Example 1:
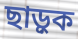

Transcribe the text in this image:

ছাড়ুক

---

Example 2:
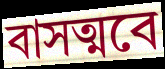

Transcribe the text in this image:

বাসত্মবে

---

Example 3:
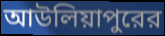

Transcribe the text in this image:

আউলিয়াপুরের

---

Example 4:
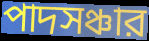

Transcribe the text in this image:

পাদসঞ্চার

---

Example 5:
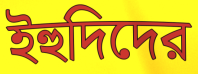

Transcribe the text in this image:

ইহুদিদের